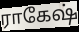
ராகேஷ்